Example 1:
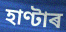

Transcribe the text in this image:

হাণ্টাৰ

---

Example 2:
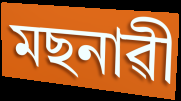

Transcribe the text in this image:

মছনাৱী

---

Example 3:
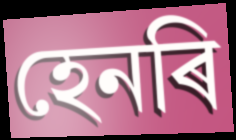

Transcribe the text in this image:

হেনৰি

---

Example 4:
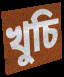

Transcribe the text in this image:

খুচি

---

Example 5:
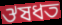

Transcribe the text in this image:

ঔষধত